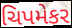
ચિપમેકર